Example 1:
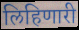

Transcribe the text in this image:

लिहिणारी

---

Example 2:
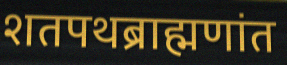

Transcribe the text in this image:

शतपथब्राह्मणांत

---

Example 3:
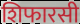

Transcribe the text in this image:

शिफारसी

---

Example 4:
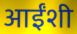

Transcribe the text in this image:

आईंशी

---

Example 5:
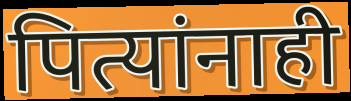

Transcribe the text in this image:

पित्यांनाही